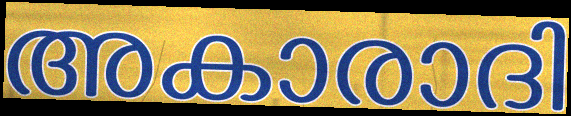
അകാരാദി